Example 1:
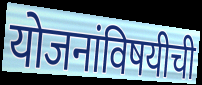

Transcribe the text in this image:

योजनांविषयीची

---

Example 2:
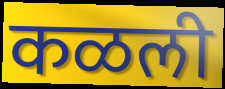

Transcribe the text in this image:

कळली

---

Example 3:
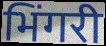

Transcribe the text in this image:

भिंगरी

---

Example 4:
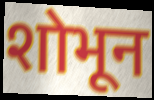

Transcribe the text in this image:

शोभून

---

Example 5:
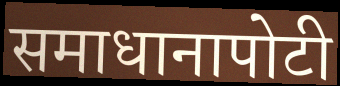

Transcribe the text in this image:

समाधानापोटी